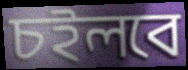
চইলবে